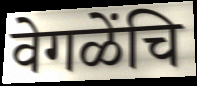
वेगळेंचि